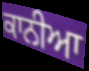
ਕਾਨੀਆ